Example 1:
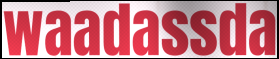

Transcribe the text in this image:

waadassda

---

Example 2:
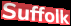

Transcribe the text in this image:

Suffolk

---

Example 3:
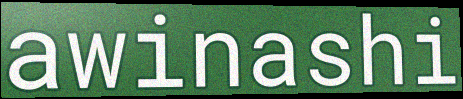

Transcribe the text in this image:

awinashi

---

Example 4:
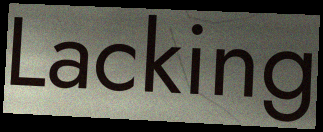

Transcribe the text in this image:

Lacking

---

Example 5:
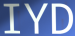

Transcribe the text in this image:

IYD